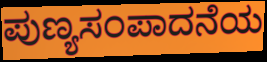
ಪುಣ್ಯಸಂಪಾದನೆಯ